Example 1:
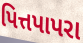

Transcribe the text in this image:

પિત્તપાપરા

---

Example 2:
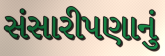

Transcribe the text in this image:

સંસારીપણાનું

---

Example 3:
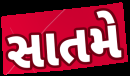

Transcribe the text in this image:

સાતમે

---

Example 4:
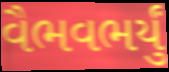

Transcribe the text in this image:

વૈભવભર્યું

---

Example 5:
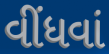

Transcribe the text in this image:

વીંધવાં